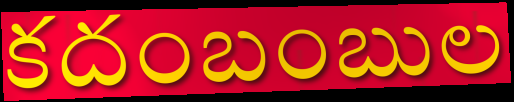
కదంబంబుల